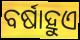
ବର୍ଷାହୁଏ